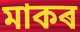
মাকৰ